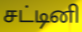
சட்டினி